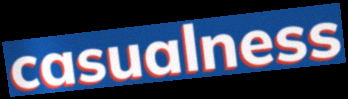
casualness